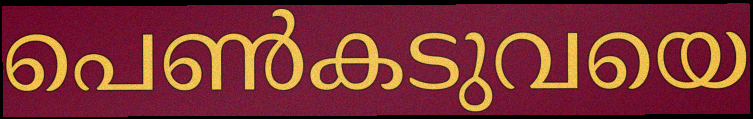
പെൺകടുവയെ